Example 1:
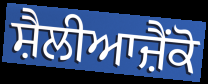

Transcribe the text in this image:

ਸ਼ੈਲੀਆਜ਼ੈਂਕੋ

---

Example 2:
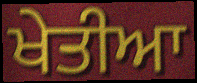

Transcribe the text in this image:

ਖੇਤੀਆ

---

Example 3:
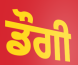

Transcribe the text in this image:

ਡੌਗੀ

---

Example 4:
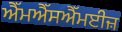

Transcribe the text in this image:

ਐੱਮਐੱਸਐੱਮਈਜ਼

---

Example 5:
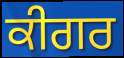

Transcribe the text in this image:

ਕੀਗਰ